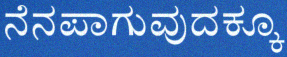
ನೆನಪಾಗುವುದಕ್ಕೂ